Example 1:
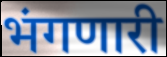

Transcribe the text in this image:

भंगणारी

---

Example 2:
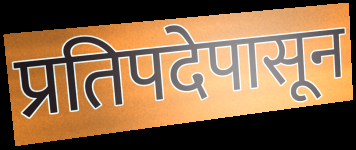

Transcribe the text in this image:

प्रतिपदेपासून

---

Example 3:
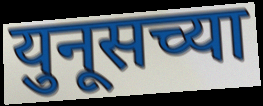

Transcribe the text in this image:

युनूसच्या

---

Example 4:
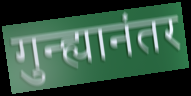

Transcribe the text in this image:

गुन्ह्यानंतर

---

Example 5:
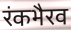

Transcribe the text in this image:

रंकभैरव